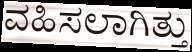
ವಹಿಸಲಾಗಿತ್ತು